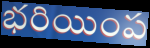
భరియింప